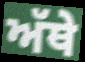
ਅੱਥੇ